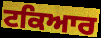
ਟਕਿਆਰ